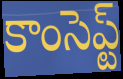
కాంసెప్ట్